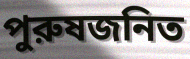
পুরুষজনিত